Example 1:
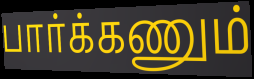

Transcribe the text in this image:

பார்க்கணும்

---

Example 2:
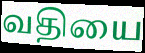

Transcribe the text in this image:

வதியை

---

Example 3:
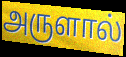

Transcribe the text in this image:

அருளால்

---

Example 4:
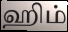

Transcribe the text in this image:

ஹிம்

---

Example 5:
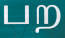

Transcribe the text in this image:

பற